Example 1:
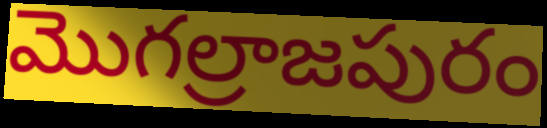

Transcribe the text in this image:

మొగల్రాజపురం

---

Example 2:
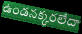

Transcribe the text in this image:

ఉండనక్కరలేదా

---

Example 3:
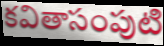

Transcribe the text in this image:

కవితాసంపుటి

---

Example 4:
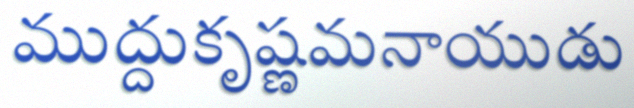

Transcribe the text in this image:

ముద్దుకృష్ణమనాయుడు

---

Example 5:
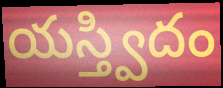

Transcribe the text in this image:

యస్త్విదం